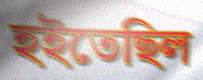
হইতেছিল